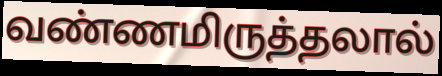
வண்ணமிருத்தலால்